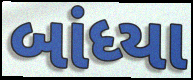
બાંધ્યા